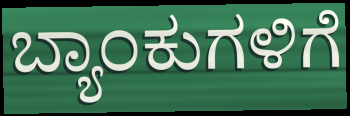
ಬ್ಯಾಂಕುಗಳಿಗೆ